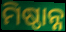
ମିଷ୍ଠାନ୍ନ